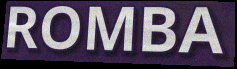
ROMBA